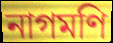
নাগমণি